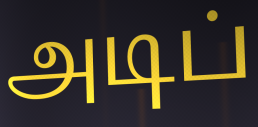
அடிப்